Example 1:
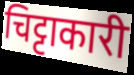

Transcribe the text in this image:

चिट्टाकारी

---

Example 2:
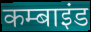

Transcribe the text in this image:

कम्बाइंड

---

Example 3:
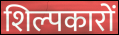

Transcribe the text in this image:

शिल्पकारों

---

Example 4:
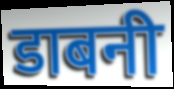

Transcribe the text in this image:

डाबनी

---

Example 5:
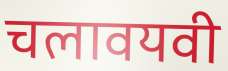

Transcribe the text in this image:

चलावयवी